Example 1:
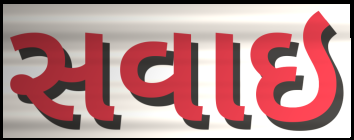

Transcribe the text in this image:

સવાઇ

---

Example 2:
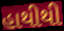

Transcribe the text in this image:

હાથીથી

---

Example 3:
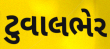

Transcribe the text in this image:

ટુવાલભેર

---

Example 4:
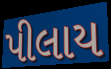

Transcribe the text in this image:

પીલાય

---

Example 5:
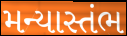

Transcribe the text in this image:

મન્યાસ્તંભ